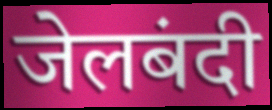
जेलबंदी